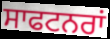
ਸਾਫਟਨਰਾਂ